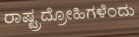
ರಾಷ್ಟ್ರದ್ರೋಹಿಗಳೆಂದು